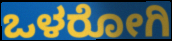
ಒಳರೋಗಿ